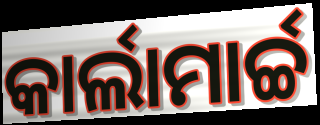
କାର୍ଲାମାର୍ଚ୍ଚ